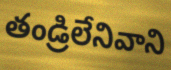
తండ్రిలేనివాని